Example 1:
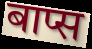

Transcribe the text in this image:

बाप्स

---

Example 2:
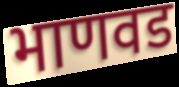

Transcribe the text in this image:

भाणवड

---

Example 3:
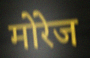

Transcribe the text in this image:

मोरेज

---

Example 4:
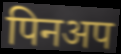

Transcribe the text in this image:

पिनअप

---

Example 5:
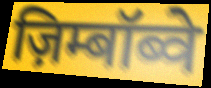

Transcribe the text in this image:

ज़िम्बॉब्वे